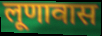
लूणावास